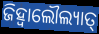
ଜିହ୍ଵାଲୌଲ୍ୟାତ୍